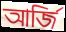
আৰ্জি